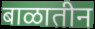
बाळातीन